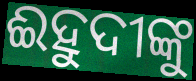
ଈହୁଦୀଙ୍କୁ